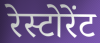
रेस्टोरेंट